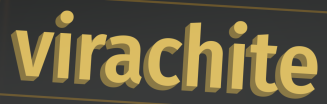
virachite